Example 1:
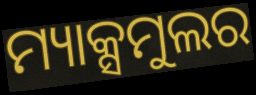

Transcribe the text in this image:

ମ୍ୟାକ୍ସମୁଲର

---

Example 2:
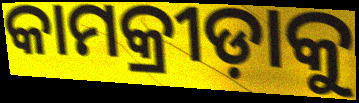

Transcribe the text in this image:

କାମକ୍ରୀଡ଼ାକୁ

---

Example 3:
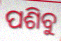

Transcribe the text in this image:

ପଶିବୁ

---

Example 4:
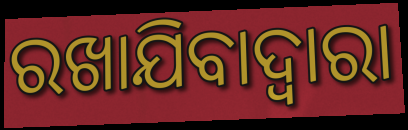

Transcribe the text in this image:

ରଖାଯିବାଦ୍ଵାରା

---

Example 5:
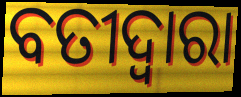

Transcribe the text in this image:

ବତୀଦ୍ୱାରା